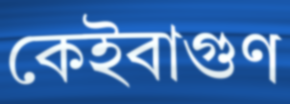
কেইবাগুণ